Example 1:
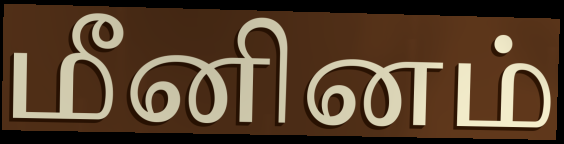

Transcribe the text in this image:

மீனினம்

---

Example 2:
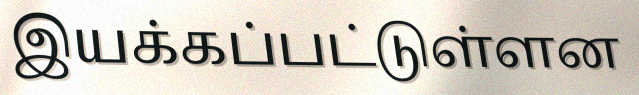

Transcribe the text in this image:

இயக்கப்பட்டுள்ளன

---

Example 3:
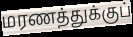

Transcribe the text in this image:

மரணத்துக்குப்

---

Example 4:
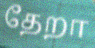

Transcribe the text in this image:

தேறா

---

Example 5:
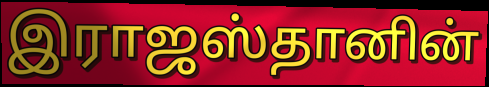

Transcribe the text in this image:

இராஜஸ்தானின்